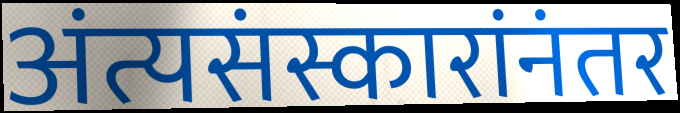
अंत्यसंस्कारांनंतर